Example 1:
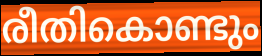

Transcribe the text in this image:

രീതികൊണ്ടും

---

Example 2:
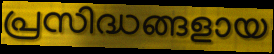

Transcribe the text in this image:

പ്രസിദ്ധങ്ങളായ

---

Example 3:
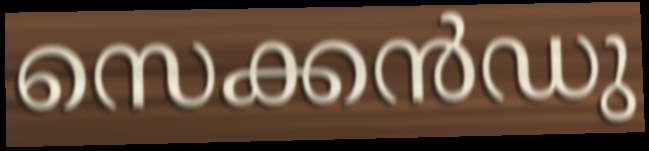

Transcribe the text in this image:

സെക്കൻഡു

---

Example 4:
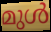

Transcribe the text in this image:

മുൾ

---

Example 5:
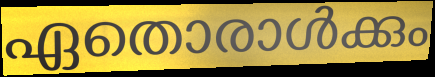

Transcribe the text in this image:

ഏതൊരാൾക്കും